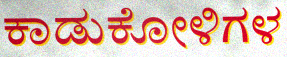
ಕಾಡುಕೋಳಿಗಳ